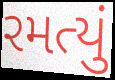
રમત્યું